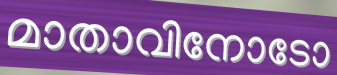
മാതാവിനോടോ